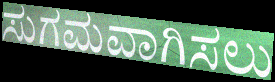
ಸುಗಮವಾಗಿಸಲು